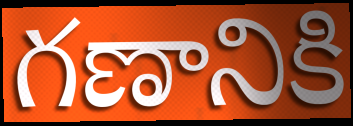
గణానికి